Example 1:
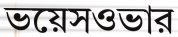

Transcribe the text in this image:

ভয়েসওভার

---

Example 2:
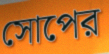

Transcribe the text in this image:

সোপের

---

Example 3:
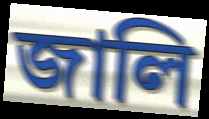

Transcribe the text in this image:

জালি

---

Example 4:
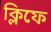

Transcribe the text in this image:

ক্লিফে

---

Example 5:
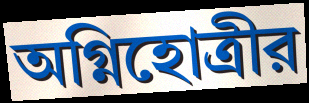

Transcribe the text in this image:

অগ্নিহোত্রীর